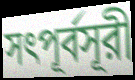
সৎপূর্বসূরী